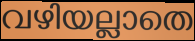
വഴിയല്ലാതെ